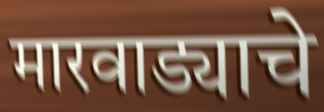
मारवाड्याचे